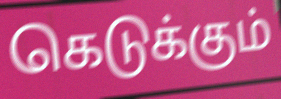
கெடுக்கும்